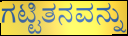
ಗಟ್ಟಿತನವನ್ನು